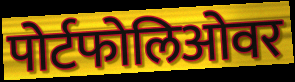
पोर्टफोलिओवर